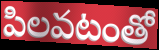
పిలవటంతో